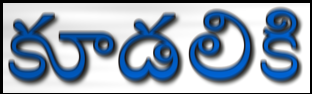
కూడలికి